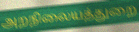
அறநிலையத்துறை